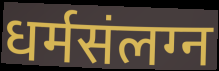
धर्मसंलग्न